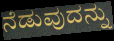
ನೆಡುವುದನ್ನು